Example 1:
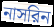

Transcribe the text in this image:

নাসরিন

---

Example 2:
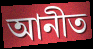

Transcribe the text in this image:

আনীত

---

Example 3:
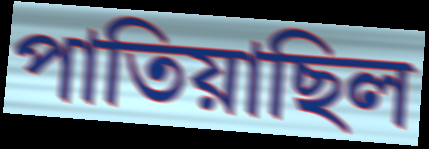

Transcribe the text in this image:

পাতিয়াছিল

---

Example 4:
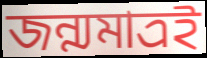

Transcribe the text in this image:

জন্মমাত্রই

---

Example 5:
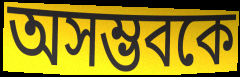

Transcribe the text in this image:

অসম্ভবকে